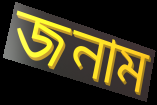
জনাম